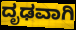
ದೃಢವಾಗಿ